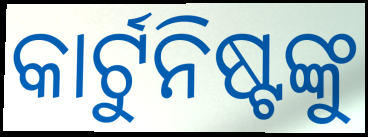
କାର୍ଟୁନିଷ୍ଟଙ୍କୁ